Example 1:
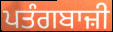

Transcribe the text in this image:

ਪਤੰਗਬਾਜ਼ੀ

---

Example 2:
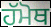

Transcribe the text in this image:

ਹੱਮੋਥ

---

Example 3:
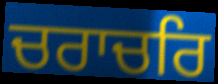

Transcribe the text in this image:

ਚਰਾਚਰਿ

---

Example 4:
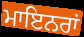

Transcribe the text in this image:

ਮਾਇਨਰਾਂ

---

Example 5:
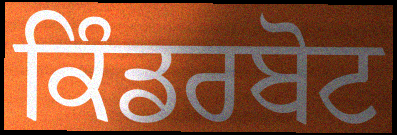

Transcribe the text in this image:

ਕਿੰਡਰਬੋਟ